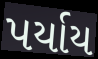
પર્યાય